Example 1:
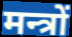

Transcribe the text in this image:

मन्त्रों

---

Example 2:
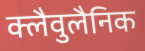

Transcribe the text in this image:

क्लैवुलैनिक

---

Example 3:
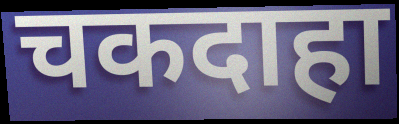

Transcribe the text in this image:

चकदाहा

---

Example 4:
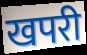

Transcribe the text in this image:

खपरी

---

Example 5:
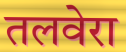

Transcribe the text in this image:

तलवेरा